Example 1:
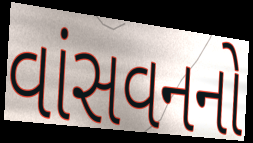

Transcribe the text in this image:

વાંસવનનો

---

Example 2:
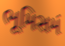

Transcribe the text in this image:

ભૂમિસમં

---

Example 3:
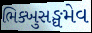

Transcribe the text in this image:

ભિક્ખુસઙ્ઘમેવ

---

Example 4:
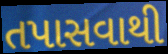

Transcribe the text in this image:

તપાસવાથી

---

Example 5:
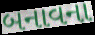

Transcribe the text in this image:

બનાવના